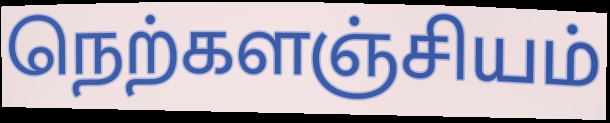
நெற்களஞ்சியம்